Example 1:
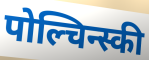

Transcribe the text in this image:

पोल्चिन्स्की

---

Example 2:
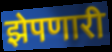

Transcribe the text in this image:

झेपणारी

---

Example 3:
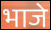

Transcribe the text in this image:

भाजे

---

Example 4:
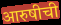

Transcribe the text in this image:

आरुषीची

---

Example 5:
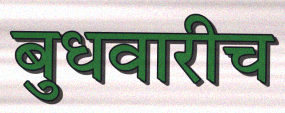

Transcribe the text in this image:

बुधवारीच